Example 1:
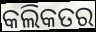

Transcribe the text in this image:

କଲିକତର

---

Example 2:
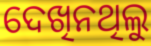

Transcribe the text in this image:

ଦେଖିନଥିଲୁ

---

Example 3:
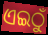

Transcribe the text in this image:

ଏଇଠୁଁ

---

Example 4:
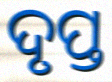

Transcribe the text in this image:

ଦୃପ୍ତ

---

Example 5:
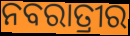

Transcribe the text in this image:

ନବରାତ୍ରୀର